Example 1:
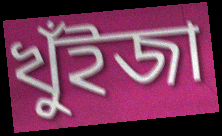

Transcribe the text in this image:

খুঁইজা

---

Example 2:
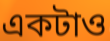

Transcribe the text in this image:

একটাও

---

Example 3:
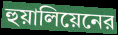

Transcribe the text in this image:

হুয়ালিয়েনের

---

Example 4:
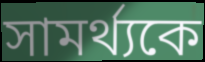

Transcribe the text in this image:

সামর্থ্যকে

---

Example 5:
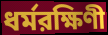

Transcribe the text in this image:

ধর্মরক্ষিণী